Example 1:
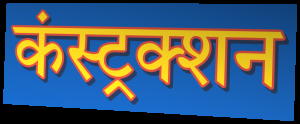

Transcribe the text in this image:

कंस्‍ट्रक्‍शन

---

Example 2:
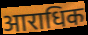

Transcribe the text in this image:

आराधिक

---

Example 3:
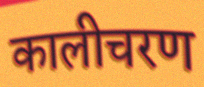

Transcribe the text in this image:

कालीचरण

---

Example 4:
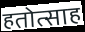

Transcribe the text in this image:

हतोत्साह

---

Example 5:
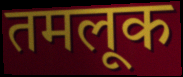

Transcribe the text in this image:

तमलूक